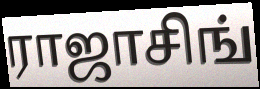
ராஜாசிங்